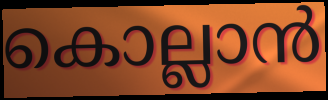
കൊല്ലാൻ